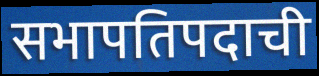
सभापतिपदाची